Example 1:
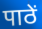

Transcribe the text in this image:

पाठें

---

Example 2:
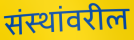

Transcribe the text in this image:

संस्थांवरील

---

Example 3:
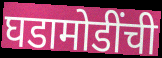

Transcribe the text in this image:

घडामोडींची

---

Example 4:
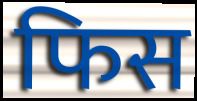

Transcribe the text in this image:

फिस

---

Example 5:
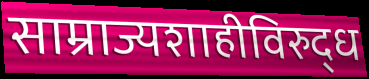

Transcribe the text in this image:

साम्राज्यशाहीविरुद्ध